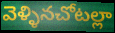
వెళ్ళినచోటల్లా